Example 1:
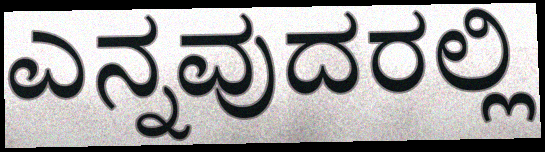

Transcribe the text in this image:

ಎನ್ನವುದರಲ್ಲಿ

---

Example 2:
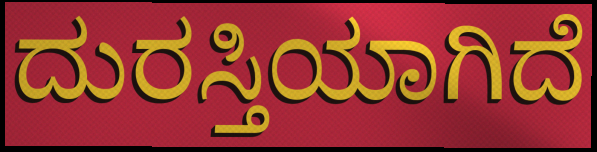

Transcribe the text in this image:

ದುರಸ್ತಿಯಾಗಿದೆ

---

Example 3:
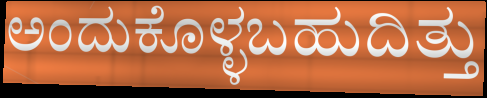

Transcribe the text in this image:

ಅಂದುಕೊಳ್ಳಬಹುದಿತ್ತು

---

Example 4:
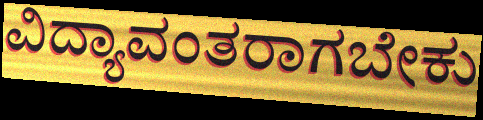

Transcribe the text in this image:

ವಿದ್ಯಾವಂತರಾಗಬೇಕು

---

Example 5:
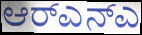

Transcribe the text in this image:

ಆರ್‌ಎನ್ಎ